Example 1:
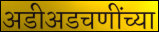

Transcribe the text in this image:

अडीअडचणींच्या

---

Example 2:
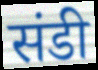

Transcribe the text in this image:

संडी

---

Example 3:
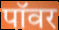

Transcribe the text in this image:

पॉवर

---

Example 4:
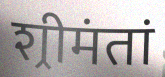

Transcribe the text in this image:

श्रीमंतां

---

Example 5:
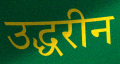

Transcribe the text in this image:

उद्धरीन